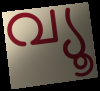
വ്യൂ